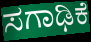
ಸಗಾಢಿಕೆ